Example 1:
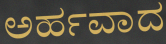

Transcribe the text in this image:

ಅರ್ಹವಾದ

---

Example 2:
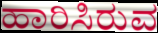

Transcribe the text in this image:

ಹಾರಿಸಿರುವ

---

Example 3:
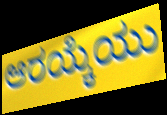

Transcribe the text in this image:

ಆರಯ್ಕೆಯು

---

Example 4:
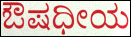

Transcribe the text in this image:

ಔಷಧೀಯ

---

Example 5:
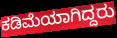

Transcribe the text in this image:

ಕಡಿಮೆಯಾಗಿದ್ದರು